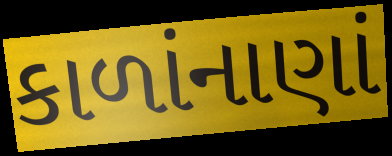
કાળાંનાણાં